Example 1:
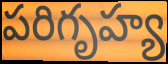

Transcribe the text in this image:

పరిగృహ్య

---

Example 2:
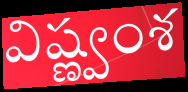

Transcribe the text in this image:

విష్ణ్వంశ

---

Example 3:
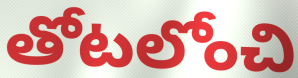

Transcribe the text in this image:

తోటలోంచి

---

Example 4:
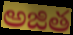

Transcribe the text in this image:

అజిత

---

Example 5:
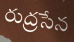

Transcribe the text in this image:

రుద్రసేన